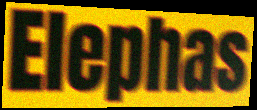
Elephas